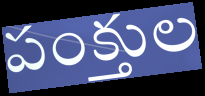
పంక్తుల